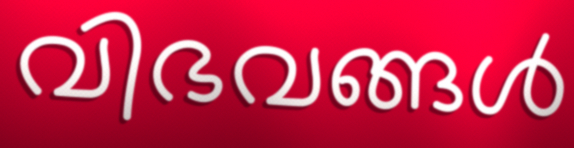
വിഭവങ്ങൾ